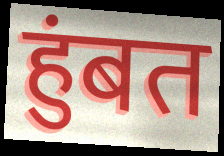
हुंबत